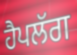
ਹੈਪਲੱਗ